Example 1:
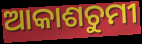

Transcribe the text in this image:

ଆକାଶଚୁମୀ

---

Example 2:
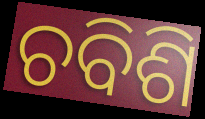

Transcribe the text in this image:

ଚବିଶି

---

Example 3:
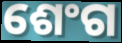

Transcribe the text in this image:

ଶେଂଗ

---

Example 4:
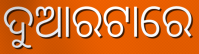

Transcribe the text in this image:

ଦୁଆରଟାରେ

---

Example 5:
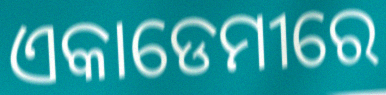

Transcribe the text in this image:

ଏକାଡେମୀରେ